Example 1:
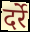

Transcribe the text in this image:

दर्रे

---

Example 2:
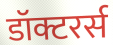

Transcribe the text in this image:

डॉक्टरर्स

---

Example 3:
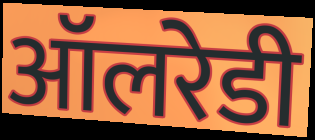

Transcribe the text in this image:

ऑलरेडी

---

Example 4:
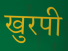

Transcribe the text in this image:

खुरपी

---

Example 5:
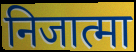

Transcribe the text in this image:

निजात्मा